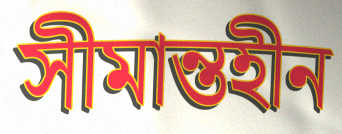
সীমান্তহীন